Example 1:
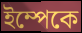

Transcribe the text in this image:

ইম্পেকে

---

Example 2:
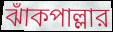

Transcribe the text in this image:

ঝাঁকপাল্লার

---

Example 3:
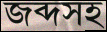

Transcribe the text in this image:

জব্দসহ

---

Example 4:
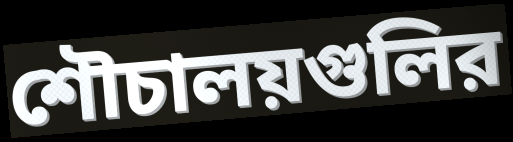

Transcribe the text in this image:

শৌচালয়গুলির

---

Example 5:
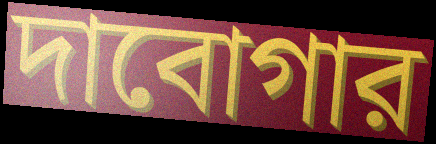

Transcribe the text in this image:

দাবোগার